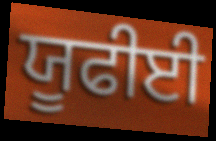
ਯੂਫੀਈ